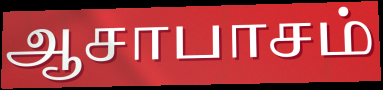
ஆசாபாசம்